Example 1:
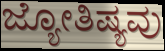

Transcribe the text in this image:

ಜ್ಯೋತಿಷ್ಯವು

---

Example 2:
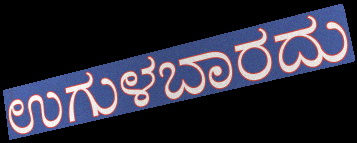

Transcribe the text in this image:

ಉಗುಳಬಾರದು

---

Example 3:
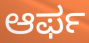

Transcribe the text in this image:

ಆರ್ಫ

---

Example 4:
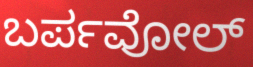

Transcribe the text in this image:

ಬರ್ಪವೋಲ್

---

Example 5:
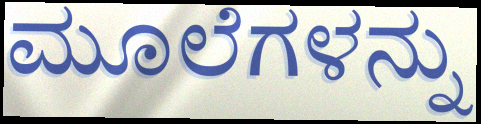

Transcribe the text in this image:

ಮೂಲೆಗಳನ್ನು